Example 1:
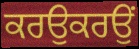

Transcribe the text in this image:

ਕਰਉਕਰਉਂ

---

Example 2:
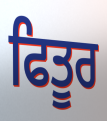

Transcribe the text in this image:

ਫਿਤੂਰ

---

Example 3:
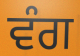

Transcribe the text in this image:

ਵੰਗ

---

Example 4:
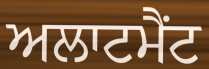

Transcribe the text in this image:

ਅਲਾਟਮੈਂਟ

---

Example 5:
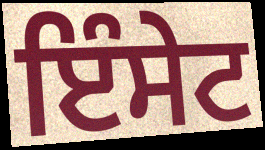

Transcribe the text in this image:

ਇੰਸੇਟ